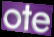
ote